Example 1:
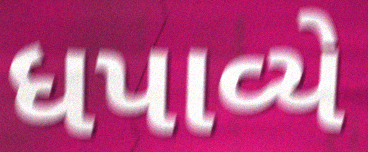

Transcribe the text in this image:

ધપાવ્યે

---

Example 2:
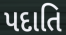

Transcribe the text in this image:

પદાતિ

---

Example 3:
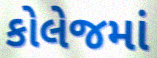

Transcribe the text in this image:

કોલેજમાં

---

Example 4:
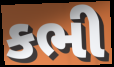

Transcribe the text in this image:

કભી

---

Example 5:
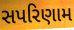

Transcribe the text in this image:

સપરિણામ